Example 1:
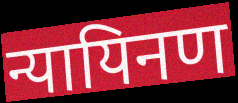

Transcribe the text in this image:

न्यायिनण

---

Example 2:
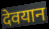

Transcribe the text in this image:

देवयान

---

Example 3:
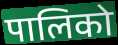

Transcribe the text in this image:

पालिको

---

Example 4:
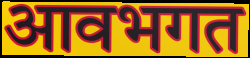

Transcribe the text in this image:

आवभगत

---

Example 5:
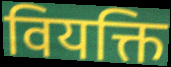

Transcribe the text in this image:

वियक्ति